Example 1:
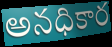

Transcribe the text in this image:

అనధికార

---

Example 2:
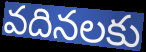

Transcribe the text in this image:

వదినలకు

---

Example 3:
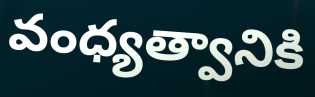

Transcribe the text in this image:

వంధ్యత్వానికి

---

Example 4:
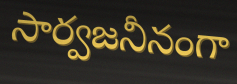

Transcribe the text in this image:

సార్వజనీనంగా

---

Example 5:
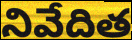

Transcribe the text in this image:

నివేదిత